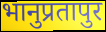
भानुप्रतापुर